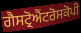
ਗੈਸਟ੍ਰੋਐਂਟਰੋਸਕੋਪੀ